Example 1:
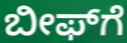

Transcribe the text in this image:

ಬೀಫ್‌ಗೆ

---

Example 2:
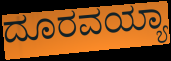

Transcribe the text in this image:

ದೂರವಯ್ಯಾ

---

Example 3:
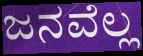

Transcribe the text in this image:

ಜನವೆಲ್ಲ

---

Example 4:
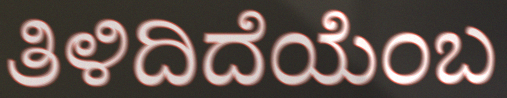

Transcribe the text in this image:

ತಿಳಿದಿದೆಯೆಂಬ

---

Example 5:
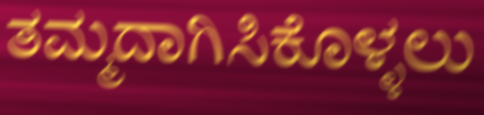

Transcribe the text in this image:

ತಮ್ಮದಾಗಿಸಿಕೊಳ್ಳಲು